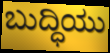
ಬುದ್ಧಿಯು